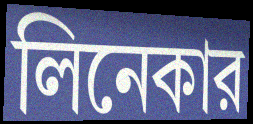
লিনেকার